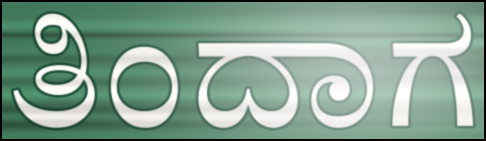
ತಿಂದಾಗ